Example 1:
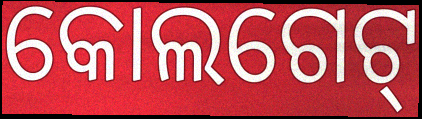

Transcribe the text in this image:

କୋଲଗେଟ୍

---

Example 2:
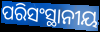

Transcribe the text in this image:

ପରିସଂସ୍ଥାନୀୟ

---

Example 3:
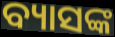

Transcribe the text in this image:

ବ୍ୟାସଙ୍କ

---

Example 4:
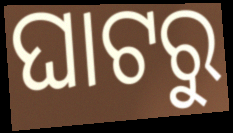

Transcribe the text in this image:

ଘାଟରୁ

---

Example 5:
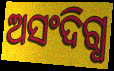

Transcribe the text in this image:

ଅସଂଦିଗ୍ଧ